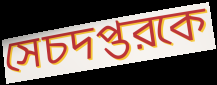
সেচদপ্তরকে